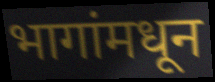
भागांमधून